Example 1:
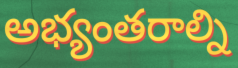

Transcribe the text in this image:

అభ్యంతరాల్ని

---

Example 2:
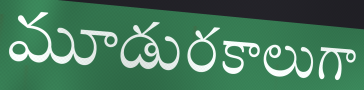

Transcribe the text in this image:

మూడురకాలుగా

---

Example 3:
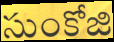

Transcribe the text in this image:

సుంకోజి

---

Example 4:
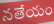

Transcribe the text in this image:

నతేయం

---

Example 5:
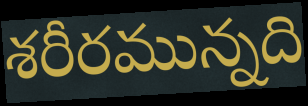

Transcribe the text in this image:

శరీరమున్నది